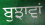
ਬੁਝਾਵਾਂ